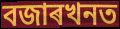
বজাৰখনত